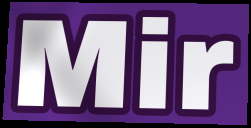
Mir